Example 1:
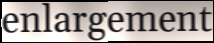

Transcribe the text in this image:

enlargement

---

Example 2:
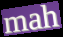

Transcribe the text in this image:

mah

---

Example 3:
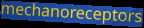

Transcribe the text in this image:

mechanoreceptors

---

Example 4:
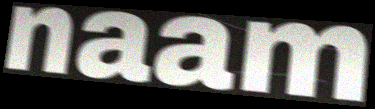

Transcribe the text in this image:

naam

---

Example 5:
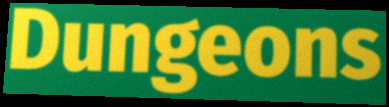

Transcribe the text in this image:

Dungeons